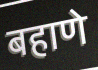
बहाणे